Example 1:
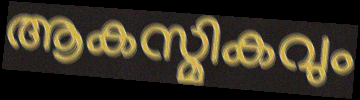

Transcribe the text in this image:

ആകസ്മികവും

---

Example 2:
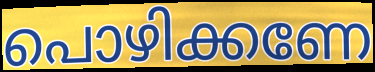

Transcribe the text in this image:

പൊഴിക്കണേ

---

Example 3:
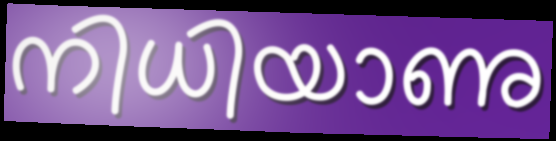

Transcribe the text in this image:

നിധിയാണു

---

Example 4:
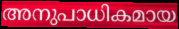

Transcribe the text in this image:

അനുപാധികമായ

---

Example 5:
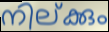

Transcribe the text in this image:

നില്ക്കും